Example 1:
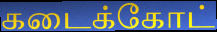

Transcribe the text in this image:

கடைக்கோட்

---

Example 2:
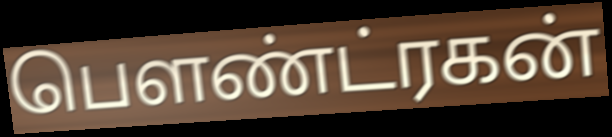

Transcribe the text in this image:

பௌண்ட்ரகன்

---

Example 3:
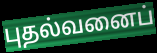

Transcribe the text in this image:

புதல்வனைப்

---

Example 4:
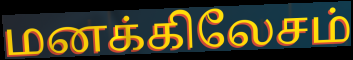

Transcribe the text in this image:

மனக்கிலேசம்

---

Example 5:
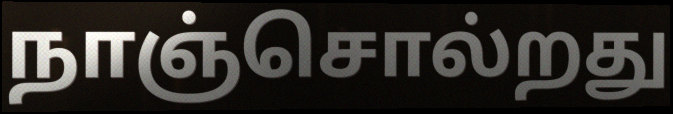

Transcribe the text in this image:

நாஞ்சொல்றது